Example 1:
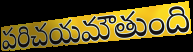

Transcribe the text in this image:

పరిచయమౌతుంది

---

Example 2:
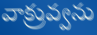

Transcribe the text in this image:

వాక్రువ్వను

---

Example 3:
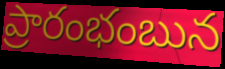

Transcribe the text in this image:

ప్రారంభంబున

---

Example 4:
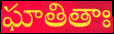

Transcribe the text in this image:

ఘాతితాః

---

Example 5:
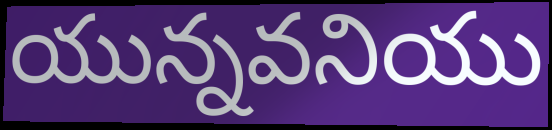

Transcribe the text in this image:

యున్నవనియు